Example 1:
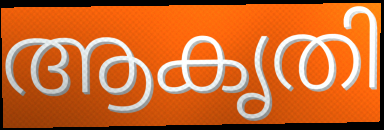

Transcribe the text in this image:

ആകൃതി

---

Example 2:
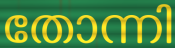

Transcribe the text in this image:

തോന്നി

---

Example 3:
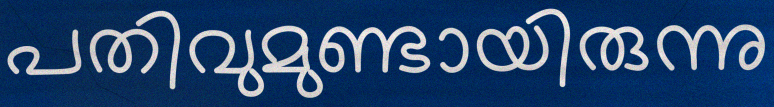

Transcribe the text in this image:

പതിവുമുണ്ടായിരുന്നു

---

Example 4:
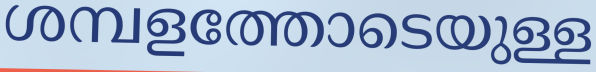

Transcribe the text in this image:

ശമ്പളത്തോടെയുള്ള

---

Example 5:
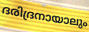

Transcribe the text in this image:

ദരിദ്രനായാലും